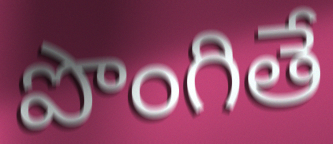
పొంగితే